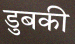
डुबकी